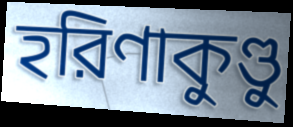
হরিণাকুণ্ডু